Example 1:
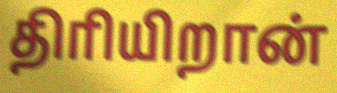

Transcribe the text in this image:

திரியிறான்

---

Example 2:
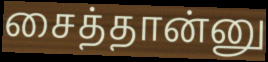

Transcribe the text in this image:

சைத்தான்னு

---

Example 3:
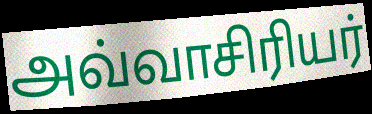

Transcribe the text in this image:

அவ்வாசிரியர்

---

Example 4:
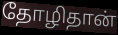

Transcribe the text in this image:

தோழிதான்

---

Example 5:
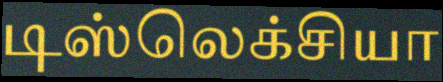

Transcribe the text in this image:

டிஸ்லெக்சியா